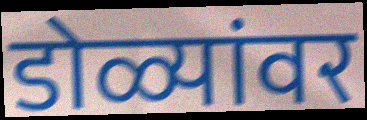
डोळ्यांवर